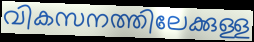
വികസനത്തിലേക്കുള്ള